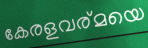
കേരളവര്മയെ